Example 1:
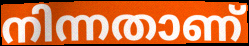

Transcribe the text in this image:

നിന്നതാണ്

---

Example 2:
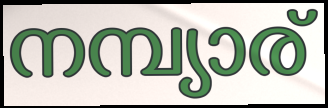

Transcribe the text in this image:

നമ്പ്യാര്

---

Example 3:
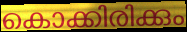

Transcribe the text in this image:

കൊക്കിരിക്കും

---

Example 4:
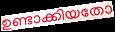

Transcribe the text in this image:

ഉണ്ടാക്കിയതോ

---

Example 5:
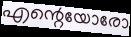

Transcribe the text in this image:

എന്റെയോരോ